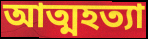
আত্মহত্যা